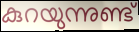
കുറയുന്നുണ്ട്